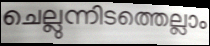
ചെല്ലുന്നിടത്തെല്ലാം